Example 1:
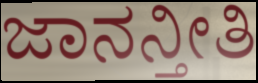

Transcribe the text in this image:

ಜಾನನ್ತೀತಿ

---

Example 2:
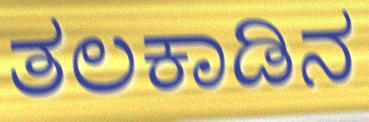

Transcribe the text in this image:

ತಲಕಾಡಿನ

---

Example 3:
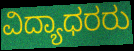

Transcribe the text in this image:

ವಿದ್ಯಾಧರರು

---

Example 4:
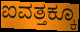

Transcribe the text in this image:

ಐವತ್ತಕ್ಕೂ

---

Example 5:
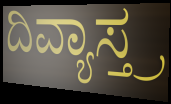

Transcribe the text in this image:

ದಿವ್ಯಾಸ್ತ್ರ